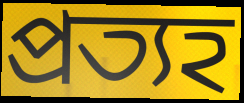
প্রত্যহ